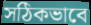
সঠিকভাবে